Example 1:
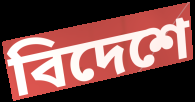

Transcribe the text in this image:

বিদেশে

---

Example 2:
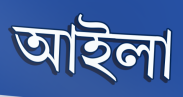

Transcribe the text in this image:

আইলা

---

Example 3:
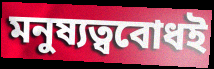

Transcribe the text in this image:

মনুষ্যত্ববোধই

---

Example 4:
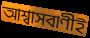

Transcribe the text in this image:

আশ্বাসবাণীই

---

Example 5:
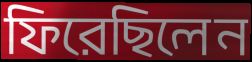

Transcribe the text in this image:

ফিরেছিলেন